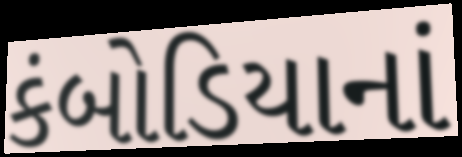
કંબોડિયાનાં